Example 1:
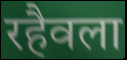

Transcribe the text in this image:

रहैवला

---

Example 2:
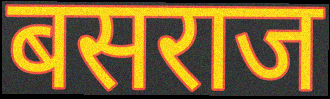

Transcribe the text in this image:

बसराज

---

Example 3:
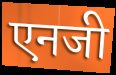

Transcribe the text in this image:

एनजी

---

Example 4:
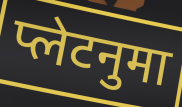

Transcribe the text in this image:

प्लेटनुमा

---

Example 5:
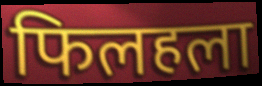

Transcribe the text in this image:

फिलहला